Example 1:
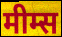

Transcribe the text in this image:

मीम्स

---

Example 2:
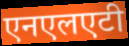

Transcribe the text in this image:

एनएलएटी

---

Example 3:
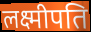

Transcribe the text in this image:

लक्ष्मीपति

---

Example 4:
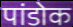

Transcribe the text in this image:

पांडोक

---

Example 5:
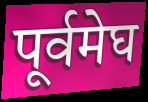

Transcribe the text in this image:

पूर्वमेघ